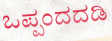
ಒಪ್ಪಂದದಡಿ